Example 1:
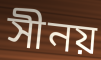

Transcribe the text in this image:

সীনয়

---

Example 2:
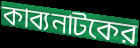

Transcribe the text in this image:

কাব্যনাটকের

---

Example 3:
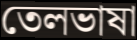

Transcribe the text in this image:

তেলভাষা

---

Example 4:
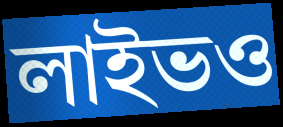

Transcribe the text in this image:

লাইভও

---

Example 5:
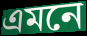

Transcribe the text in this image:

এমনে